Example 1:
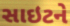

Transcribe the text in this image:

સાઇટને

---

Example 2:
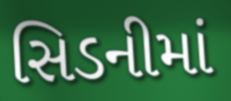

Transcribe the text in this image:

સિડનીમાં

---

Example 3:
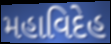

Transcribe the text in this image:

મહાવિદેહ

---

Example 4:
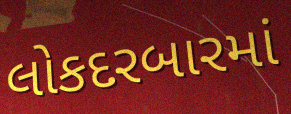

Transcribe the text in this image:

લોકદરબારમાં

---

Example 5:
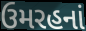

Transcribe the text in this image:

ઉમરહનાં